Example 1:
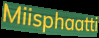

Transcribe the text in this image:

Miisphaatti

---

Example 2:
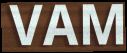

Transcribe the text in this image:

VAM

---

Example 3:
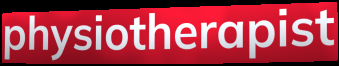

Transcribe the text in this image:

physiotherapist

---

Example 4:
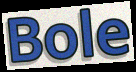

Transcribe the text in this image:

Bole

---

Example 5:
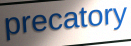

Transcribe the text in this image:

precatory